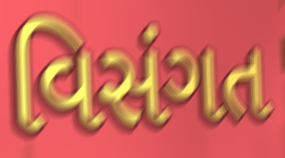
વિસંગત